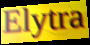
Elytra